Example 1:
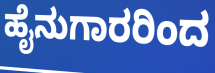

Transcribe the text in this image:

ಹೈನುಗಾರರಿಂದ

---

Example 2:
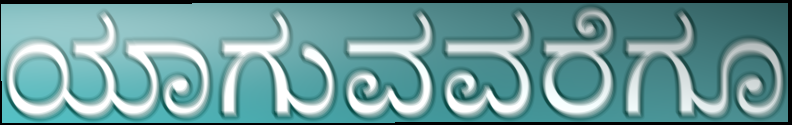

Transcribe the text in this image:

ಯಾಗುವವರೆಗೂ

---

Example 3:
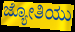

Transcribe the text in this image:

ಜ್ಯೋತಿಯು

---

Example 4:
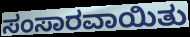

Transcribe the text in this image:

ಸಂಸಾರವಾಯಿತು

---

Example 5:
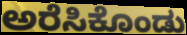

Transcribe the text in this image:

ಅರೆಸಿಕೊಂಡು